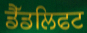
ਡੈੱਡਲਿਫਟ